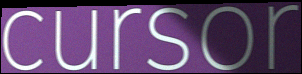
cursor